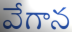
వేగాన